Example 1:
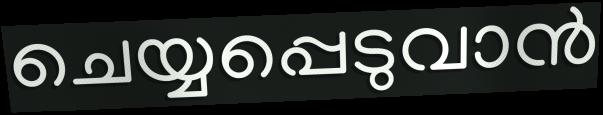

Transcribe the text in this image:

ചെയ്യപ്പെടുവാൻ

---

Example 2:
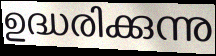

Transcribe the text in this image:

ഉദ്ധരിക്കുന്നു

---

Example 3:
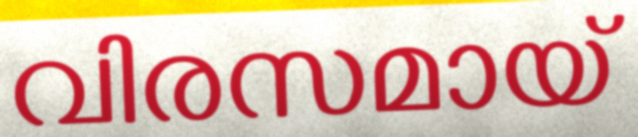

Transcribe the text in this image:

വിരസമായ്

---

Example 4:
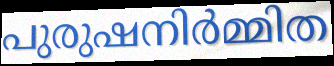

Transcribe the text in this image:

പുരുഷനിർമ്മിത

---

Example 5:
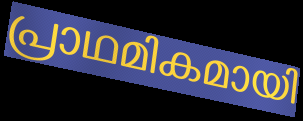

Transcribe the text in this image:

പ്രാഥമികമായി